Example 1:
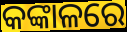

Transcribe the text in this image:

କଙ୍କାଳରେ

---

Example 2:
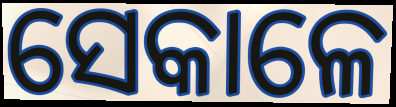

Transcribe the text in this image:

ସେକାଳେ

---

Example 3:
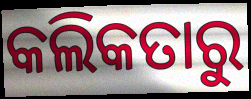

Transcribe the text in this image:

କଲିକତାରୁ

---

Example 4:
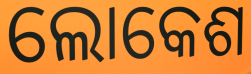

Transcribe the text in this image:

ଲୋକେଶ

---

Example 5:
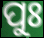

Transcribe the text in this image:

ପୁଃ